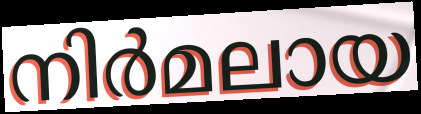
നിർമലായ